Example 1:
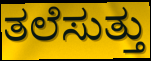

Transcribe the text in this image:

ತಲೆಸುತ್ತು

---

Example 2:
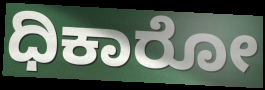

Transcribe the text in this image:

ಧಿಕಾರೋ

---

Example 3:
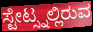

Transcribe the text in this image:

ಸ್ಟೇಟ್ಸ್ನಲ್ಲಿರುವ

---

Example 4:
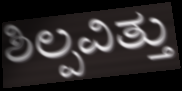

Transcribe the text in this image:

ಶಿಲ್ಪವಿತ್ತು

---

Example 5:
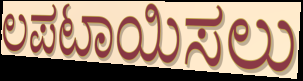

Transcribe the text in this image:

ಲಪಟಾಯಿಸಲು